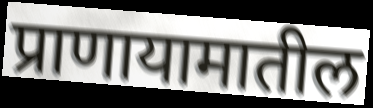
प्राणायामातील